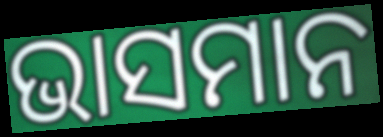
ଭାସମାନ